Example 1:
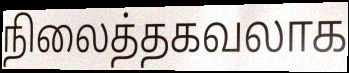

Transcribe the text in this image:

நிலைத்தகவலாக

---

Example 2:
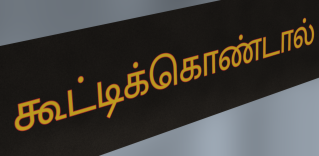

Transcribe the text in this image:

கூட்டிக்கொண்டால்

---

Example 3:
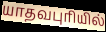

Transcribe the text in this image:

யாதவபுரியில்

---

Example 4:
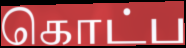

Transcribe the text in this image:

கொட்ப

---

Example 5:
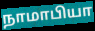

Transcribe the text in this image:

நாமாபியா